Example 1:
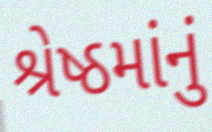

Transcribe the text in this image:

શ્રેષ્ઠમાંનું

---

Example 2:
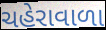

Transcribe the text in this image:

ચહેરાવાળા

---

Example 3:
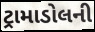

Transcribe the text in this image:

ટ્રામાડોલની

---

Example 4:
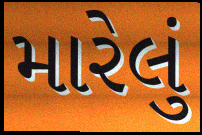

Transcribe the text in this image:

મારેલું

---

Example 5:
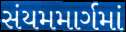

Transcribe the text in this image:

સંયમમાર્ગમાં